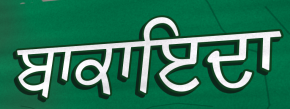
ਬਾਕਾਇਦਾ